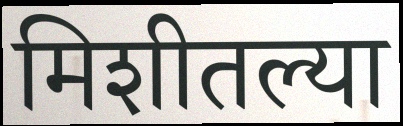
मिशीतल्या